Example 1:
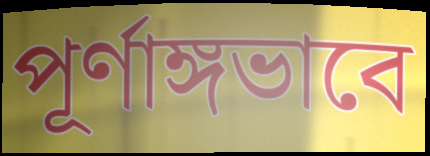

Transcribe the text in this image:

পূর্ণাঙ্গভাবে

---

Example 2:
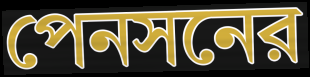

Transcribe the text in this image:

পেনসনের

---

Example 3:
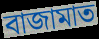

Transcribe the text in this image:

বাজামাত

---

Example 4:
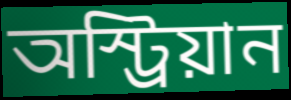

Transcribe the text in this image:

অস্ট্রিয়ান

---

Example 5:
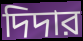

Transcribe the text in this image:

দিদার